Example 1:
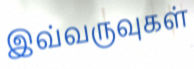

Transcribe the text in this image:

இவ்வருவுகள்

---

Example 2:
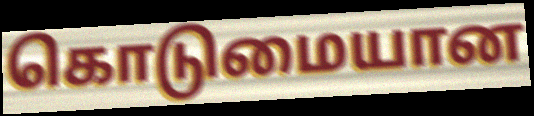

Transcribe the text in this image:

கொடுமையான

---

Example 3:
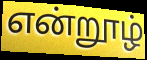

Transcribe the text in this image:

என்றூழ்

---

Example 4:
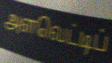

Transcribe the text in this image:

அளவெட்டிப்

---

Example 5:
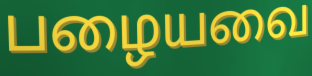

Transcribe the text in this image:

பழையவை